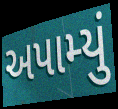
અપામ્યું